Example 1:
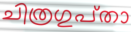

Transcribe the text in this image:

ചിത്രഗുപ്‌താ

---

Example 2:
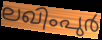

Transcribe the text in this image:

ലഖിംപുർ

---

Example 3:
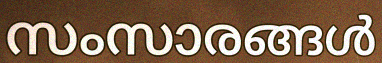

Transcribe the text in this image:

സംസാരങ്ങൾ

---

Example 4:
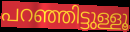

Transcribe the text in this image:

പറഞ്ഞിട്ടുള്ളൂ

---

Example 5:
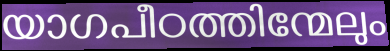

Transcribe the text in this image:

യാഗപീഠത്തിന്മേലും